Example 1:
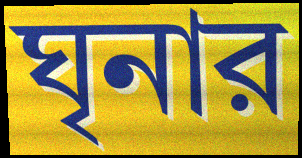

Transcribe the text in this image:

ঘৃনার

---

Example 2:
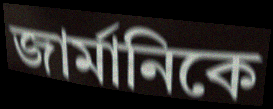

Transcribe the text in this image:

জার্মানিকে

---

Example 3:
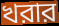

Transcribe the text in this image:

খরার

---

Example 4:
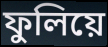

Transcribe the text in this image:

ফুলিয়ে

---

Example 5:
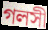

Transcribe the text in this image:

গলসী